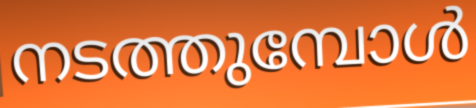
നടത്തുമ്പോൾ